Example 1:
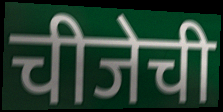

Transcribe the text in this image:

चीजेची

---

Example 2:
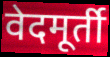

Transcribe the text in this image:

वेदमूर्ती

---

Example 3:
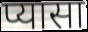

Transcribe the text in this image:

प्यासा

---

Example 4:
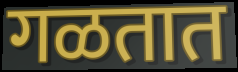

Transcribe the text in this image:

गळतात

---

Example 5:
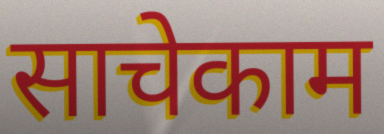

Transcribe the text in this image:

साचेकाम